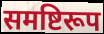
समष्टिरूप